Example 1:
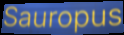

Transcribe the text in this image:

Sauropus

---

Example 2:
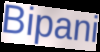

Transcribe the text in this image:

Bipani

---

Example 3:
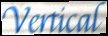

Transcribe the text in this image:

Vertical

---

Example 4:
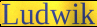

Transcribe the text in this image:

Ludwik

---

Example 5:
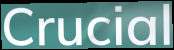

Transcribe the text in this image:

Crucial